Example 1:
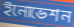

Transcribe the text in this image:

ইনোভেশন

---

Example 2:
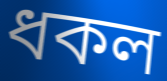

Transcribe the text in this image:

ধকল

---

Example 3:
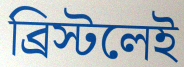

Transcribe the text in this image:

ব্রিস্টলেই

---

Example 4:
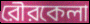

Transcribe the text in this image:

রৌরকেলা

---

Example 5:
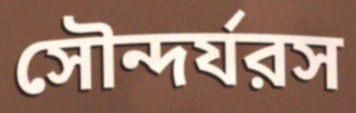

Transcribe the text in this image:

সৌন্দর্যরস